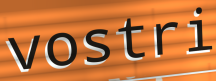
vostri